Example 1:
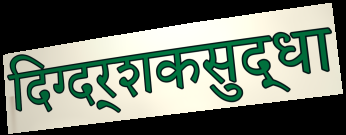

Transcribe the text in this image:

दिग्दर्शकसुद्धा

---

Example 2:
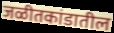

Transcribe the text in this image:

जळीतकांडातील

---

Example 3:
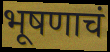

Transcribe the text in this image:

भूषणाचं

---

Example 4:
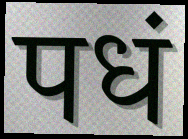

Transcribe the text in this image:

पधं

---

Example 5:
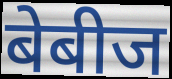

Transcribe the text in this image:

बेबीज